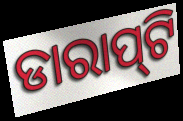
ଡାରାପ୍‌ଟି